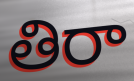
తిరా